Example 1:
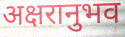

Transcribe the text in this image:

अक्षरानुभव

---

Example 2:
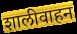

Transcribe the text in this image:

शालीवाहन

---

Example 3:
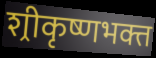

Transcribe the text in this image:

श्रीकृष्णभक्त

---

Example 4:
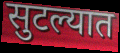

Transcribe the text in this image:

सुटल्यात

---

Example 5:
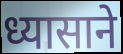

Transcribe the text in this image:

ध्यासाने